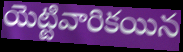
యెట్టివారికయిన